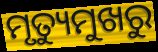
ମୃତ୍ୟୁମୁଖରୁ